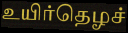
உயிர்தெழச்